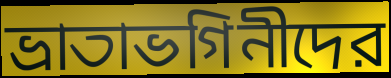
ভ্রাতাভগিনীদের